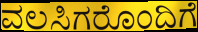
ವಲಸಿಗರೊಂದಿಗೆ